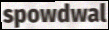
spowdwal